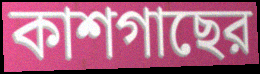
কাশগাছের